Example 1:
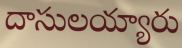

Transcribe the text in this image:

దాసులయ్యారు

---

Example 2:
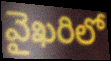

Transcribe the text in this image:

వైఖరిలో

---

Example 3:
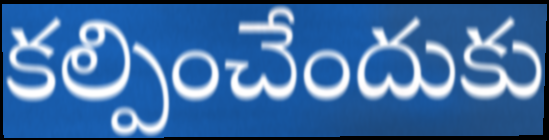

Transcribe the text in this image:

కల్పించేందుకు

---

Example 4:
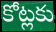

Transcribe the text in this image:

కోట్లకు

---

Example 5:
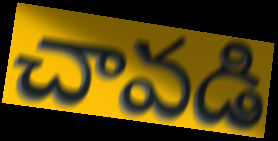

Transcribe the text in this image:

చావడి